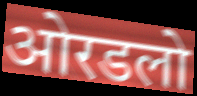
ओरडलो